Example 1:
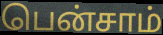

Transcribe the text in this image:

பென்சாம்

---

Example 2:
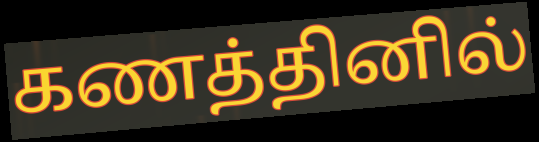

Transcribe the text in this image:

கணத்தினில்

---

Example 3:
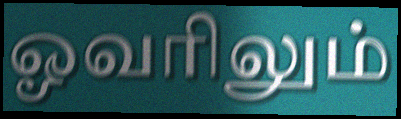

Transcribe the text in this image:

ஓவரிலும்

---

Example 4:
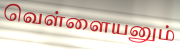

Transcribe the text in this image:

வெள்ளையனும்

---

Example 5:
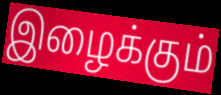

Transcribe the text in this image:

இழைக்கும்